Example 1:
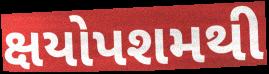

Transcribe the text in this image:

ક્ષયોપશમથી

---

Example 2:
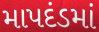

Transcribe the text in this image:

માપદંડમાં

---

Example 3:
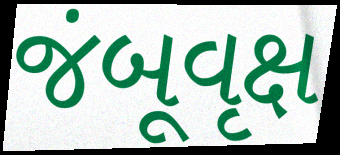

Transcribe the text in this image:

જંબૂવૃક્ષ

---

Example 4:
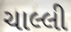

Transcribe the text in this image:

ચાલ્લી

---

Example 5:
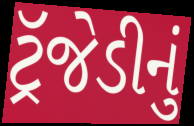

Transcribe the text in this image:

ટ્રૅજેડીનું